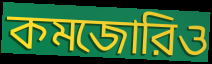
কমজোরিও